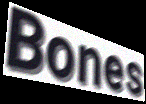
Bones